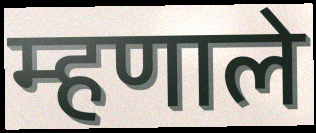
म्हणाले